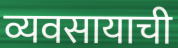
व्यवसायाची